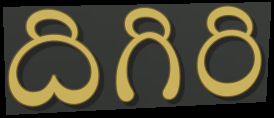
దిగిరి